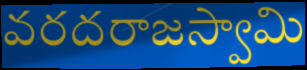
వరదరాజస్వామి